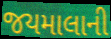
જયમાલાની